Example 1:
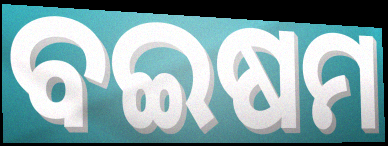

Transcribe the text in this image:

ବଇଷମ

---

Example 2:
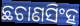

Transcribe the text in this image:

ଛଚାଣସିଂହ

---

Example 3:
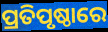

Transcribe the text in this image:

ପ୍ରତିପୃଷ୍ଠାରେ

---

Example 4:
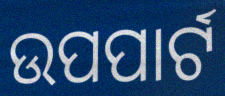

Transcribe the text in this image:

ଉପପାର୍ଟ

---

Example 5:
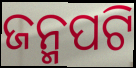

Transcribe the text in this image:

ଜନ୍ମପଟି